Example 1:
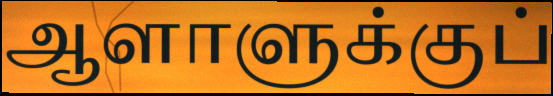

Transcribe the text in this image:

ஆளாளுக்குப்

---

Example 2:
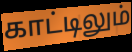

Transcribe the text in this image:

காட்டிலும்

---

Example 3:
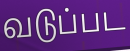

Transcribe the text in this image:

வடுப்பட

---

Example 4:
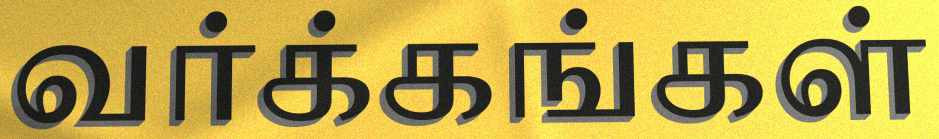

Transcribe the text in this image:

வர்க்கங்கள்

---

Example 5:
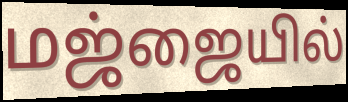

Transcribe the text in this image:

மஜ்ஜையில்